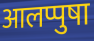
आलप्पुषा